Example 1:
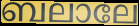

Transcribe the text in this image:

ബലാലേ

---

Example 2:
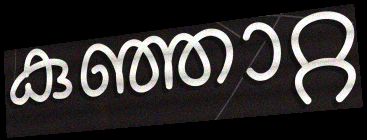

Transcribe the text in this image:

കുഞ്ഞാറ്റ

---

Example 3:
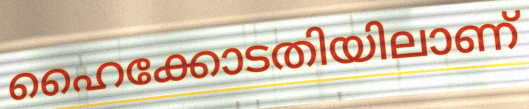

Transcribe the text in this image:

ഹൈക്കോടതിയിലാണ്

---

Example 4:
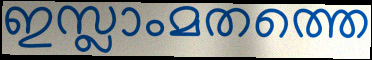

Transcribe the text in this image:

ഇസ്ലാംമതത്തെ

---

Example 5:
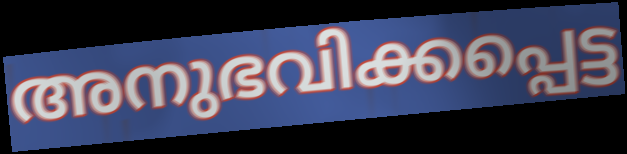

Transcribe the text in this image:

അനുഭവിക്കപ്പെട്ട